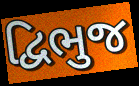
દ્વિભુજ